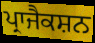
ਪ੍ਰਾਜੈਕਸ਼ਨ